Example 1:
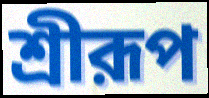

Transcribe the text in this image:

শ্রীরূপ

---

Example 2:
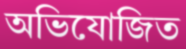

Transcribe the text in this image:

অভিযোজিত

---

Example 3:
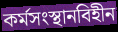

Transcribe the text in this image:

কর্মসংস্থানবিহীন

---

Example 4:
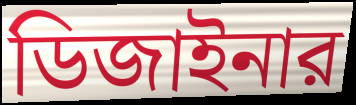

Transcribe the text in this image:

ডিজাইনার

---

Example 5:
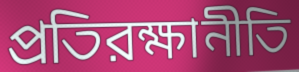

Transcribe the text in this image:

প্রতিরক্ষানীতি